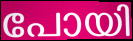
പോയി